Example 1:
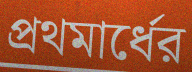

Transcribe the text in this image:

প্রথমার্ধের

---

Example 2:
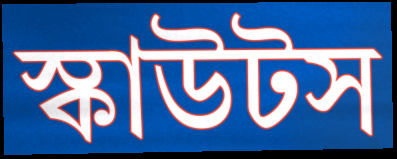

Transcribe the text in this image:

স্কাউটস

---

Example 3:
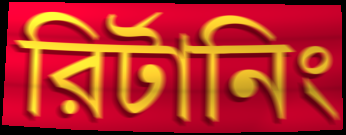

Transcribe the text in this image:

রির্টানিং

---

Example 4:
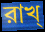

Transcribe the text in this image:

রাখ্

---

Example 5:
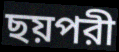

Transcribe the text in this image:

ছয়পরী